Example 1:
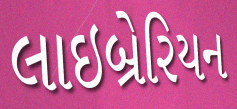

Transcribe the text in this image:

લાઇબ્રેરિયન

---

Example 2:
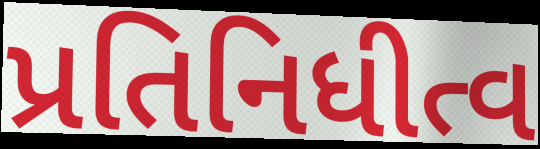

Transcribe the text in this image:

પ્રતિનિધીત્વ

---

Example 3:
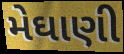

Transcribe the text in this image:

મેઘાણી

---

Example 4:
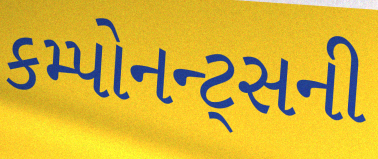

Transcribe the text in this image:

કમ્પોનન્ટ્સની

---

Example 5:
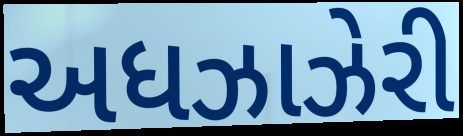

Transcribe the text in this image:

અધઝાઝેરી